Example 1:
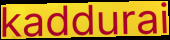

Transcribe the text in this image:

kaddurai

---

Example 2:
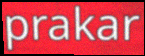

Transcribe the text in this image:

prakar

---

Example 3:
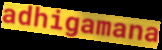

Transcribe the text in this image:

adhigamana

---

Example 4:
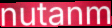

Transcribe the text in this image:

nutanm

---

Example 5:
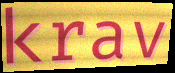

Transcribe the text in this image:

krav